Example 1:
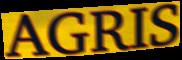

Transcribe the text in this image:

AGRIS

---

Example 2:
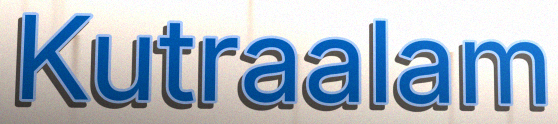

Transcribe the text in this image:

Kutraalam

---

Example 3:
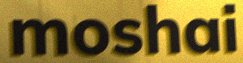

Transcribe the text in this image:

moshai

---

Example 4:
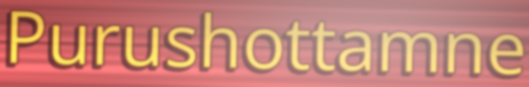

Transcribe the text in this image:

Purushottamne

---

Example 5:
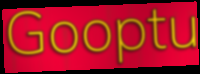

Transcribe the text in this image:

Gooptu